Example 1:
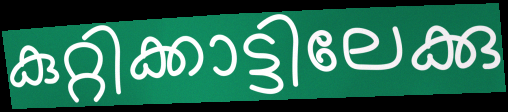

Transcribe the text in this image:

കുറ്റിക്കാട്ടിലേക്കു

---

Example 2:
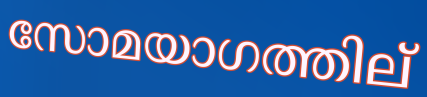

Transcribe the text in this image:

സോമയാഗത്തില്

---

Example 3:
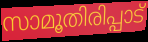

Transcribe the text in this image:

സാമൂതിരിപ്പാട്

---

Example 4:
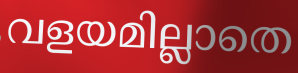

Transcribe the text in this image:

വളയമില്ലാതെ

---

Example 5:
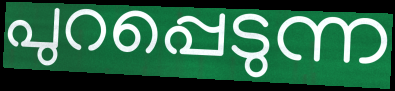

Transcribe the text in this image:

പുറപ്പെടുന്ന